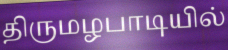
திருமழபாடியில்